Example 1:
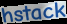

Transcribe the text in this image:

hstack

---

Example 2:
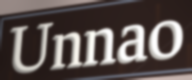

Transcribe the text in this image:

Unnao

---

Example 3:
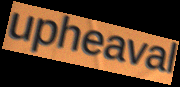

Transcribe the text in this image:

upheaval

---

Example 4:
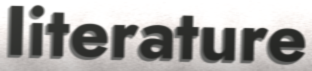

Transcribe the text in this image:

Iiterature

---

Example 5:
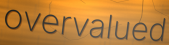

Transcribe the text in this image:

overvalued